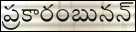
ప్రకారంబునన్